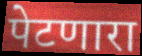
पेटणारा